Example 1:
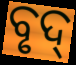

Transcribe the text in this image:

ବୃଦ୍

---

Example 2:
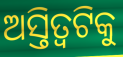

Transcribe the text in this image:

ଅସ୍ତିତ୍ୱଟିକୁ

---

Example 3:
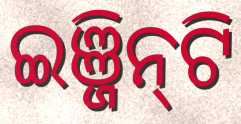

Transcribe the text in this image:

ଇଞ୍ଜିନ୍‌ଟି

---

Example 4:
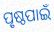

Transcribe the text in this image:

ପୃଷ୍ଠପାଇଁ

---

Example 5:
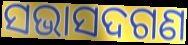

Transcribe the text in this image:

ସଭାସଦଗଣ